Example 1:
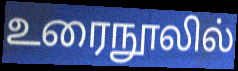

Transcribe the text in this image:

உரைநூலில்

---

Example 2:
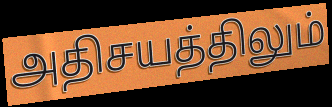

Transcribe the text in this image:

அதிசயத்திலும்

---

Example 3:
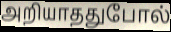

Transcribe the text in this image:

அறியாததுபோல்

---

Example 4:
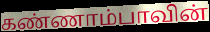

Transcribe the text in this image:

கண்ணாம்பாவின்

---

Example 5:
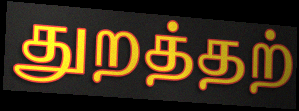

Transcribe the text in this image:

துறத்தற்